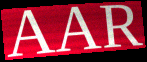
AAR